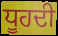
ਧੂਹਦੀ